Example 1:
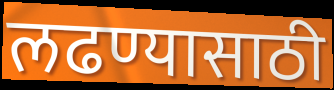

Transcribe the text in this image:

लढण्यासाठी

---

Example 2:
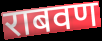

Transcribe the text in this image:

राबवण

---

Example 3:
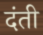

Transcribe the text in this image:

दंती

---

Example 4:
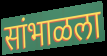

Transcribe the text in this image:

सांभाळला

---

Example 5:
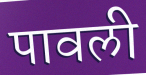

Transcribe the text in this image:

पावली